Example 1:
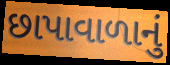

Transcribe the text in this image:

છાપાવાળાનું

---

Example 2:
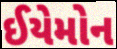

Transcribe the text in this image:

ઈયેમોન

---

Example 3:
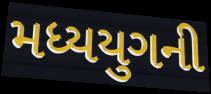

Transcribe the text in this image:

મધ્યયુગની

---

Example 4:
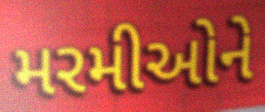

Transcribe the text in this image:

મરમીઓને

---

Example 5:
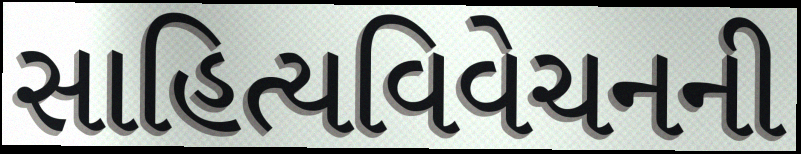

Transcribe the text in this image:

સાહિત્યવિવેચનની